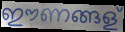
ഈണങ്ങള്